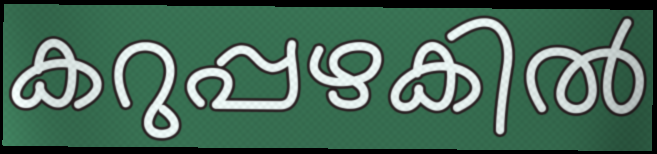
കറുപ്പഴകിൽ